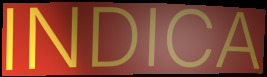
INDICA